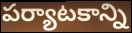
పర్యాటకాన్ని